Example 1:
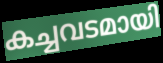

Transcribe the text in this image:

കച്ചവടമായി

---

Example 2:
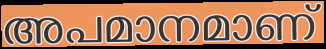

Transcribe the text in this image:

അപമാനമാണ്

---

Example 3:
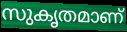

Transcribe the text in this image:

സുകൃതമാണ്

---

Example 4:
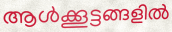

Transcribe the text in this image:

ആൾക്കൂട്ടങ്ങളിൽ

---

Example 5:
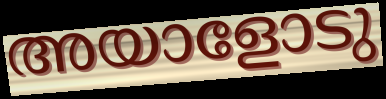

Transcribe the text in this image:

അയാളോടു